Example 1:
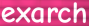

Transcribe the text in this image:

exarch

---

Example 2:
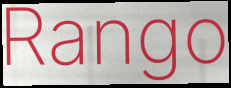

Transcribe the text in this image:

Rango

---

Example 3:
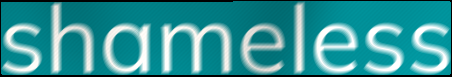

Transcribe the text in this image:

shameless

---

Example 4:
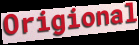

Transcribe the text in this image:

Origional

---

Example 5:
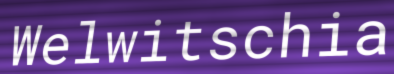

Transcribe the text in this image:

Welwitschia